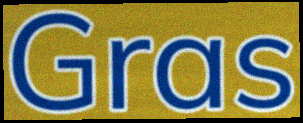
Gras